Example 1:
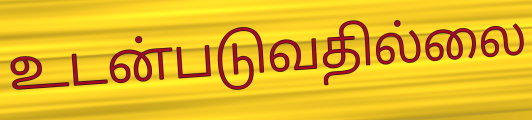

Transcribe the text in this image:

உடன்படுவதில்லை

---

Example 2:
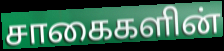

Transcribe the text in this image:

சாகைகளின்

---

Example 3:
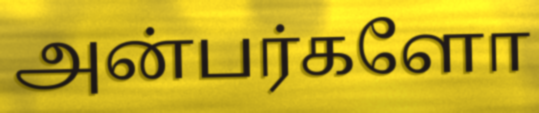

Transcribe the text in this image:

அன்பர்களோ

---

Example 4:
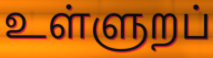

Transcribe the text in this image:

உள்ளுறப்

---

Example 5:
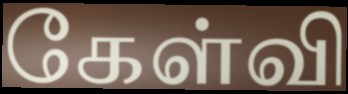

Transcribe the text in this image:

கேள்வி